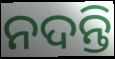
ନଦନ୍ତି